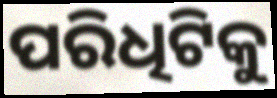
ପରିଧିଟିକୁ